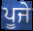
ਪੂਜੇ